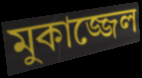
মুকাজ্জেল